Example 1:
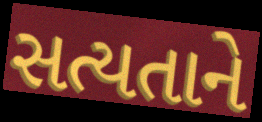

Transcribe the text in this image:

સત્યતાને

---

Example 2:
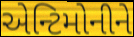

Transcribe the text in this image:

એન્ટિમોનીને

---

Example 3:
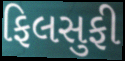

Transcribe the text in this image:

ફિલસુફી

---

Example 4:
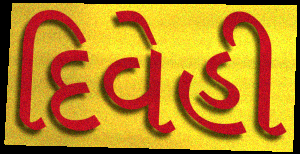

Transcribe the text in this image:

દિવેહી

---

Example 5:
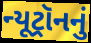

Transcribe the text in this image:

ન્યૂટ્રૉનનું